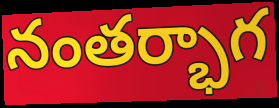
నంతర్భాగ